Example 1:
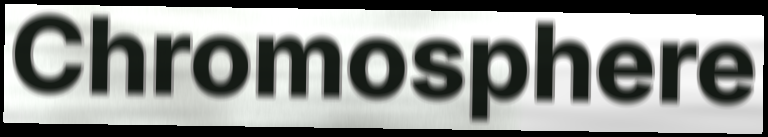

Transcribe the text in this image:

Chromosphere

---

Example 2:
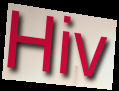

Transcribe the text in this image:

Hiv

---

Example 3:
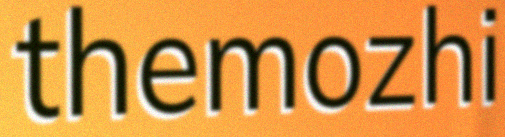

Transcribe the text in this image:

themozhi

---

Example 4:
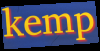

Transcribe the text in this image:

kemp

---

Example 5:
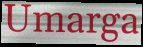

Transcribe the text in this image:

Umarga